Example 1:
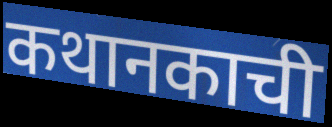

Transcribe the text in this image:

कथानकाची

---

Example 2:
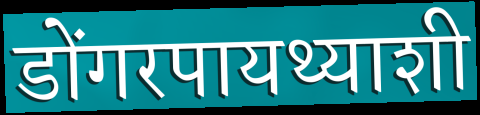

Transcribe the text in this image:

डोंगरपायथ्याशी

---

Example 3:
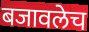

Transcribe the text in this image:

बजावलेच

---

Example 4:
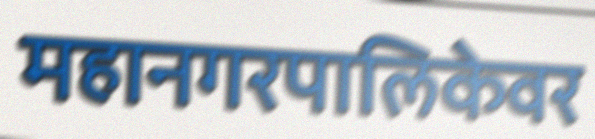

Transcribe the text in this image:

महानगरपालिकेवर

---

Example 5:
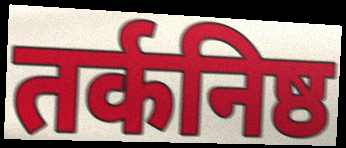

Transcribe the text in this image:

तर्कनिष्ठ